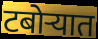
टबोऱ्यात